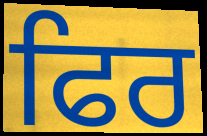
ਫਿਰ